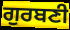
ਗੁਰਬਣੀ